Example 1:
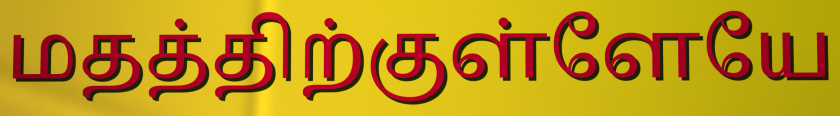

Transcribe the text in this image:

மதத்திற்குள்ளேயே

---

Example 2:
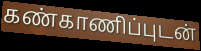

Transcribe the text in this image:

கண்காணிப்புடன்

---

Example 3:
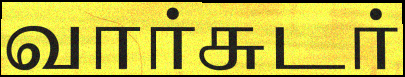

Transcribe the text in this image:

வார்சுடர்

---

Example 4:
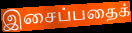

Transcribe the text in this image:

இசைப்பதைக்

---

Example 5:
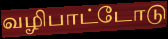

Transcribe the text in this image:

வழிபாட்டோடு